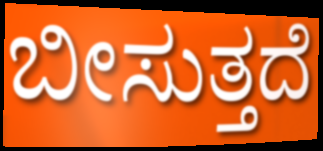
ಬೀಸುತ್ತದೆ